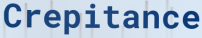
Crepitance